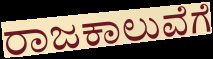
ರಾಜಕಾಲುವೆಗೆ